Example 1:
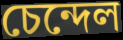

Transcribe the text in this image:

চেন্দেল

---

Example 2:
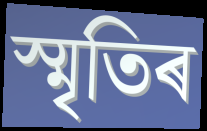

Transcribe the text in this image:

স্মৃতিৰ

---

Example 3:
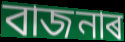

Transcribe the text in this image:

বাজনাৰ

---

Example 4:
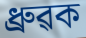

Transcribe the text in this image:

ধ্ৰুৱক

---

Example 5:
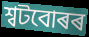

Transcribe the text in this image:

শ্বটবোৰৰ